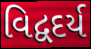
વિદ્વદર્ય